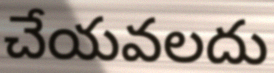
చేయవలదు